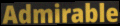
Admirable